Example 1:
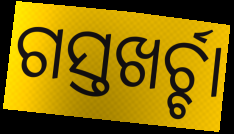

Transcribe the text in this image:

ଗସ୍ତଖର୍ଚ୍ଚା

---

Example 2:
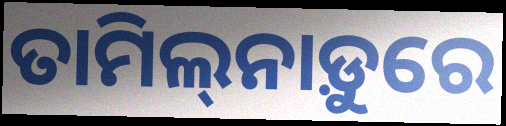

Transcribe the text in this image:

ତାମିଲ୍‌ନାଡ଼ୁରେ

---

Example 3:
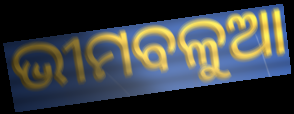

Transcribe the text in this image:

ଭୀମବଳୁଆ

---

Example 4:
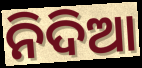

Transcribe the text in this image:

ନିଦିଆ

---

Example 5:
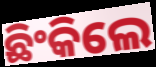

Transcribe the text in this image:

ଛିଂକିଲେ